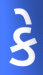
કે